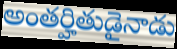
అంతర్హితుడైనాడు